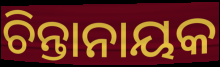
ଚିନ୍ତାନାୟକ